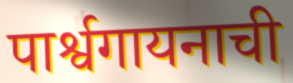
पार्श्वगायनाची